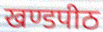
खण्डपीठ